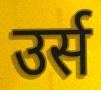
उर्स